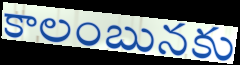
కాలంబునకు